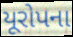
યૂરોપના